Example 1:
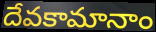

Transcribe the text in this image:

దేవకామానాం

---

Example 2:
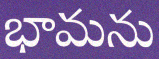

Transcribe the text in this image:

భామను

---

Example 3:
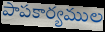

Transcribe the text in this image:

పాపకార్యముల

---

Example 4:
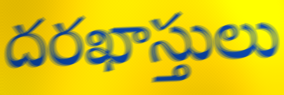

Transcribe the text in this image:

దరఖాస్తులు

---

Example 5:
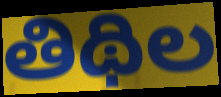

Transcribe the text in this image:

తిథిల